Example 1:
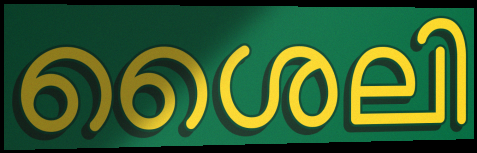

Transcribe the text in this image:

ശൈലി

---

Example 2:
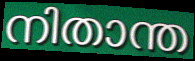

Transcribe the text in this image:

നിതാന്ത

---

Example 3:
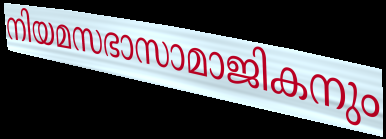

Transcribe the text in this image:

നിയമസഭാസാമാജികനും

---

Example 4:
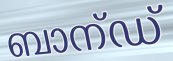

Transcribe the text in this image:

ബാന്ഡ്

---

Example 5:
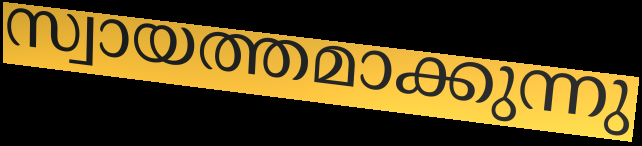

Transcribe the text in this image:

സ്വായത്തമാക്കുന്നു